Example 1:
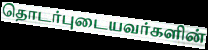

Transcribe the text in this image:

தொடர்புடையவர்களின்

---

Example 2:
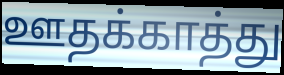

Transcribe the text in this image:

ஊதக்காத்து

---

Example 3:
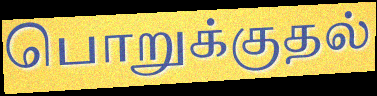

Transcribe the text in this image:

பொறுக்குதல்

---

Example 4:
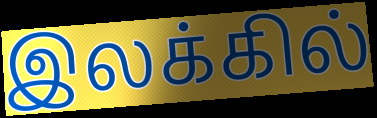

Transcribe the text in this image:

இலக்கில்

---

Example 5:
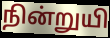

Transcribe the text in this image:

நின்றுயி